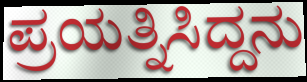
ಪ್ರಯತ್ನಿಸಿದ್ದನು